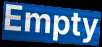
Empty